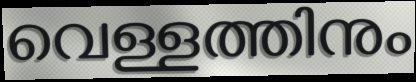
വെള്ളത്തിനും